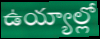
ఉయ్యాల్లో